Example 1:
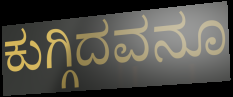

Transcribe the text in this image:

ಕುಗ್ಗಿದವನೂ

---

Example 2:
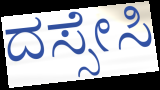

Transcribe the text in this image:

ದಸ್ಸೇಸಿ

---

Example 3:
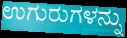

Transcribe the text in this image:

ಉಗುರುಗಳನ್ನು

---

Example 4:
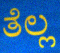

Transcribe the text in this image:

ತೆಲ್ಲ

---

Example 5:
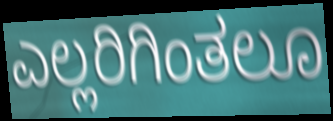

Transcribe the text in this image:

ಎಲ್ಲರಿಗಿಂತಲೂ